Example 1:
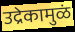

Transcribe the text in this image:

उद्रेकामुळं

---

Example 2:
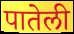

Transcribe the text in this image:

पातेली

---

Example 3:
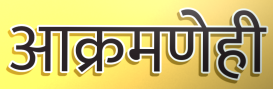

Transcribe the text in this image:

आक्रमणेही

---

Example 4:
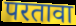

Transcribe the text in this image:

परतावा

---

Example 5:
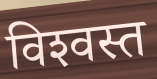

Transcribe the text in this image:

विश्‍वस्त